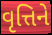
વૃત્તિને